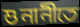
শুনানীতে